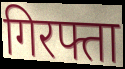
गिरफ्ता